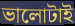
ভালোটাই